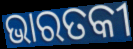
ଭାରତକୀ